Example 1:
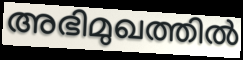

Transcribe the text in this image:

അഭിമുഖത്തിൽ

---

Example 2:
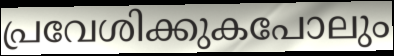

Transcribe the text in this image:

പ്രവേശിക്കുകപോലും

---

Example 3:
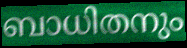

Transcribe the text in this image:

ബാധിതനും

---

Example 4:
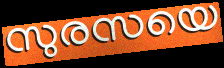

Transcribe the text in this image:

സുരസയെ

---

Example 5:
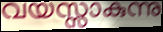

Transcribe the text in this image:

വയസ്സാകുന്നു